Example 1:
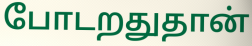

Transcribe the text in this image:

போடறதுதான்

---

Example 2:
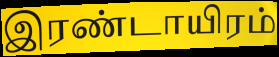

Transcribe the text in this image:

இரண்டாயிரம்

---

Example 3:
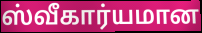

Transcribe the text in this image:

ஸ்வீகார்யமான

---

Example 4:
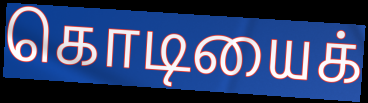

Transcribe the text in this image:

கொடியைக்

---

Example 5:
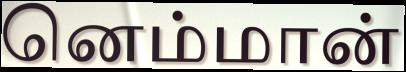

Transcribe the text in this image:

னெம்மான்